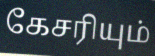
கேசரியும்